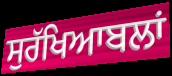
ਸੁਰੱਖਿਆਬਲਾਂ